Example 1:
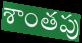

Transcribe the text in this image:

శాంతపు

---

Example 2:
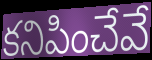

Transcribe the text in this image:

కనిపించేవే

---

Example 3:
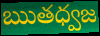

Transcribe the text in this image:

ఋతధ్వజ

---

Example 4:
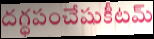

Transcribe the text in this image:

దగ్ధపంచేషుకీటమ్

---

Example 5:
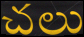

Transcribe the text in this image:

చలు